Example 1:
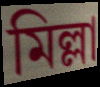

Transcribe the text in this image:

মিল্লা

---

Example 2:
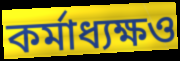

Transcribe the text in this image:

কর্মাধ্যক্ষও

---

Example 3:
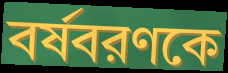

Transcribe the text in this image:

বর্ষবরণকে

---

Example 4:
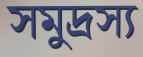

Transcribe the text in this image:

সমুদ্রস্য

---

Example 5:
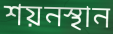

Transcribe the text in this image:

শয়নস্থান